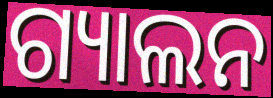
ଗ୍ୟାଲନ